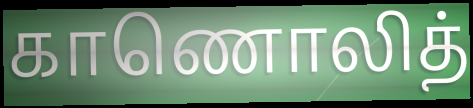
காணொலித்